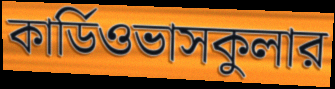
কার্ডিওভাসকুলার